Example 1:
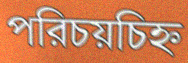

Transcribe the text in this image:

পরিচয়চিহ্ন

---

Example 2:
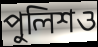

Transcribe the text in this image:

পুলিশও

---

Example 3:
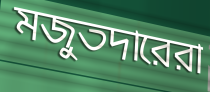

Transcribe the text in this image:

মজুতদারেরা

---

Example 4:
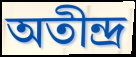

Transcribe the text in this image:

অতীন্দ্র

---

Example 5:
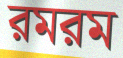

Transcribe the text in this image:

রমরম